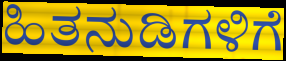
ಹಿತನುಡಿಗಳಿಗೆ